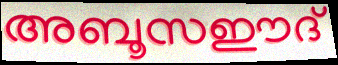
അബൂസഈദ്